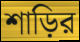
শাড়ির